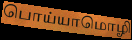
பொய்யாமொழி